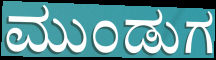
ಮುಂಡುಗ